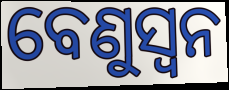
ବେଣୁସ୍ଵନ